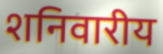
शनिवारीय